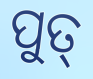
ପୁତ୍